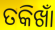
ତକିଖାଁ